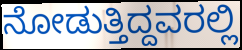
ನೋಡುತ್ತಿದ್ದವರಲ್ಲಿ